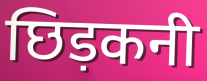
छिड़कनी